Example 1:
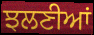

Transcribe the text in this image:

ਝਲਣੀਆਂ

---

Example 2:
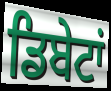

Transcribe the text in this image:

ਡਿਬੇਟਾਂ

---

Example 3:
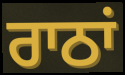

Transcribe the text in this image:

ਰਾਠਾਂ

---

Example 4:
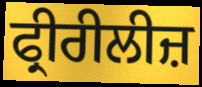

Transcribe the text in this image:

ਫ੍ਰੀਰੀਲੀਜ਼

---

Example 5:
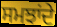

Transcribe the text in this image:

ਸਮਝਾਂਦੇ